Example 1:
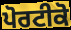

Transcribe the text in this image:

ਪੋਰਟੀਕੋ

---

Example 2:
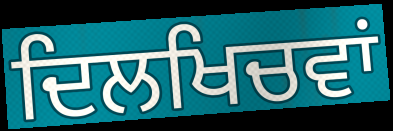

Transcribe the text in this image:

ਦਿਲਖਿਚਵਾਂ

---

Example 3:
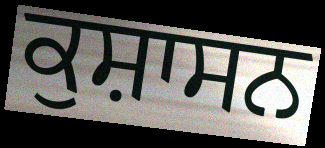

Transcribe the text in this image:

ਕੁਸ਼ਾਸਨ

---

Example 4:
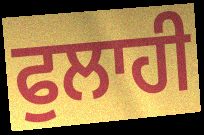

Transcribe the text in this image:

ਫੁਲਾਹੀ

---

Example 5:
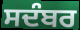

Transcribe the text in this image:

ਸਦੰਬਰ